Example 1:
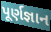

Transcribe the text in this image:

પૂર્ણજ્ઞાન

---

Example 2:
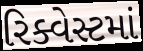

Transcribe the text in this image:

રિક્વેસ્ટમાં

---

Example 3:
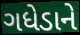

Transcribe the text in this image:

ગધેડાને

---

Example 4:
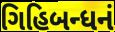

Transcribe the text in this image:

ગિહિબન્ધનં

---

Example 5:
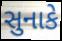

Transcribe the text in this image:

સુનાકે